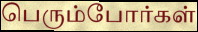
பெரும்போர்கள்